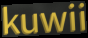
kuwii